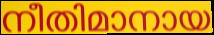
നീതിമാനായ